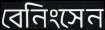
বেনিংসেন